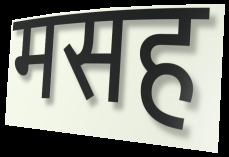
मसह